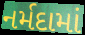
નર્મદામાં